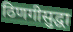
ठिणगीसुद्धा